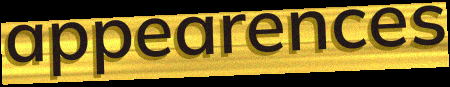
appearences